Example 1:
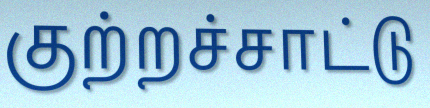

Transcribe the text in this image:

குற்றச்சாட்டு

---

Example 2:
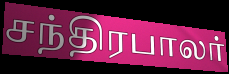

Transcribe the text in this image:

சந்திரபாலர்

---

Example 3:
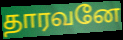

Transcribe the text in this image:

தாரவனே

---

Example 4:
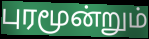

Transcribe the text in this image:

புரமூன்றும்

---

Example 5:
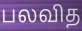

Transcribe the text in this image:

பலவித